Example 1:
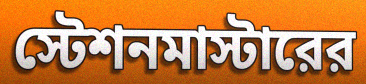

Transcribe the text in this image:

স্টেশনমাস্টারের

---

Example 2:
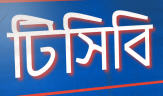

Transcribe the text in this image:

টিসিবি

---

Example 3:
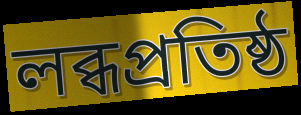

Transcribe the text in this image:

লব্ধপ্রতিষ্ঠ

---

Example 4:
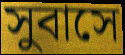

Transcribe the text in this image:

সুবাসে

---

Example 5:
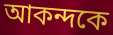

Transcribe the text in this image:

আকন্দকে